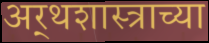
अर्थशास्त्राच्या